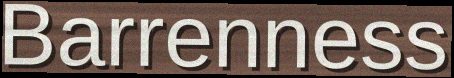
Barrenness